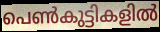
പെൺകുട്ടികളിൽ